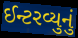
ઈન્ટરવ્યુનું